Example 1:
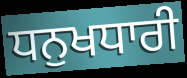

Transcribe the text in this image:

ਧਨੁਖਧਾਰੀ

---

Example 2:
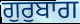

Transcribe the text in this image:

ਗੁਰੁਬਾਗ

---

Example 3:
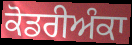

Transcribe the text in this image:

ਕੋਡਰੀਅੰਕਾ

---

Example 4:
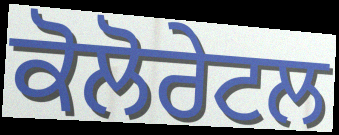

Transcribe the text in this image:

ਕੋਲੋਰੇਟਲ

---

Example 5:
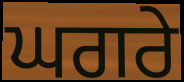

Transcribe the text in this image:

ਘਗਰੇ